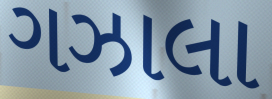
ગઝાલા